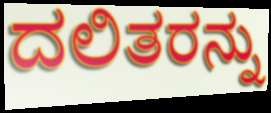
ದಲಿತರನ್ನು